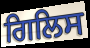
ਗਿਲਿਸ